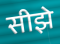
सीझे